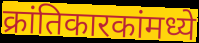
क्रांतिकारकांमध्ये